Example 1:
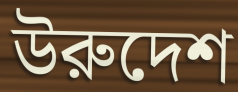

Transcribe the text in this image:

উরুদেশ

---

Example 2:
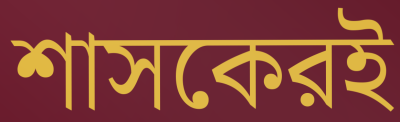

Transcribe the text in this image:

শাসকেরই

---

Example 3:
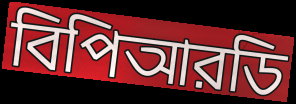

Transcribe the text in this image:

বিপিআরডি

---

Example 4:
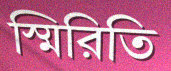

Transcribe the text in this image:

স্মিরিতি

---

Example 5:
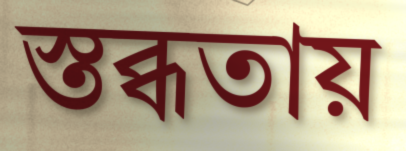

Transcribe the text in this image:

স্তব্ধতায়